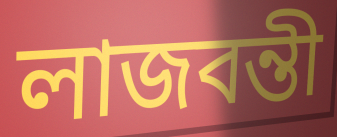
লাজবন্তী